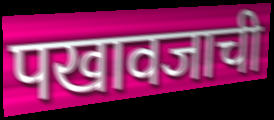
पखावजाची